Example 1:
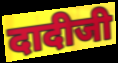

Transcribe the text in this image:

दादीजी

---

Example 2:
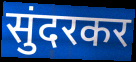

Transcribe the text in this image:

सुंदरकर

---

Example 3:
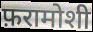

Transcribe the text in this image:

फ़रामोशी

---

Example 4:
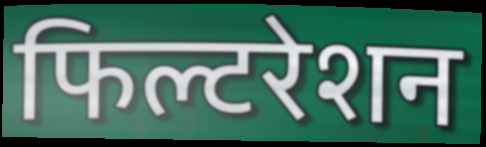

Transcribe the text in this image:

फिल्टरेशन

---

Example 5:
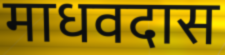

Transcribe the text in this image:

माधवदास